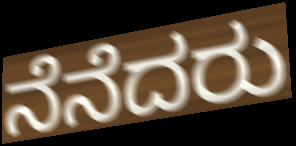
ನೆನೆದರು